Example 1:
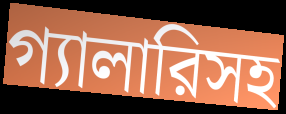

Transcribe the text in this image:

গ্যালারিসহ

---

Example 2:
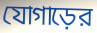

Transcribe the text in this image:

যোগাড়ের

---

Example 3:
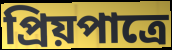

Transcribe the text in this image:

প্রিয়পাত্রে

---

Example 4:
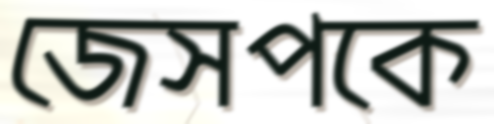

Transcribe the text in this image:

জেসপকে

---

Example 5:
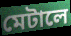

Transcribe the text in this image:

মেটালে